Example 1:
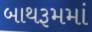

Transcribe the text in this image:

બાથરૂમમાં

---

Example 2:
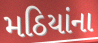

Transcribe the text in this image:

મઠિયાંના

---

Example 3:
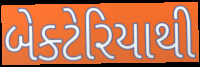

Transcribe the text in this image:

બેક્ટેરિયાથી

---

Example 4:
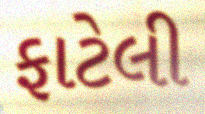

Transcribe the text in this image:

ફાટેલી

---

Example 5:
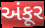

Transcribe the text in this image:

અંકૂર